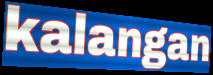
kalangan